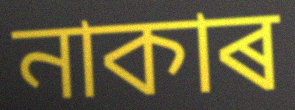
নাকাৰ